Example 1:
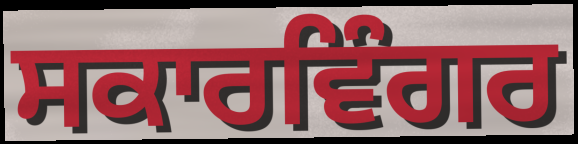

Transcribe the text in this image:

ਸਕਾਰਵਿੰਗਰ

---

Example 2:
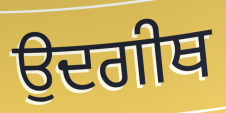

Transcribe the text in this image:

ਉਦਗੀਥ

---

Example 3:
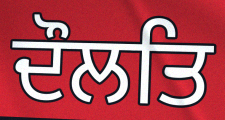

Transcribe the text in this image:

ਦੌਲਤਿ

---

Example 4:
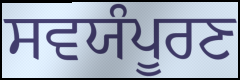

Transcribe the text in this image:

ਸਵਯੰਪੂਰਣ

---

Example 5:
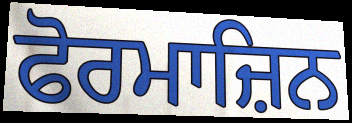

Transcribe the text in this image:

ਫੋਰਮਾਜ਼ਿਨ